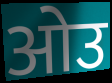
ओउ